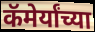
कॅमेर्यांच्या